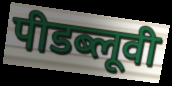
पीडब्लूवी